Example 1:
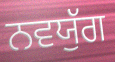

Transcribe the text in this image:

ਨਵਯੁੱਗ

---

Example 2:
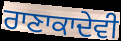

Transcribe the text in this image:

ਰਾਣਾਕਾਦੇਵੀ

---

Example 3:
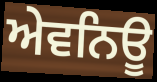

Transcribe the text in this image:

ਅੇਵਨਿਊ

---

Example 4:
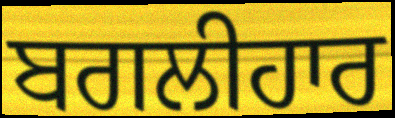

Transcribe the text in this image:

ਬਗਲੀਹਾਰ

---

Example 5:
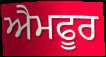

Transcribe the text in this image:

ਐਮਫੂਰ